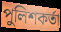
পুলিশকর্তা